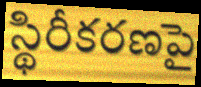
స్థిరీకరణపై